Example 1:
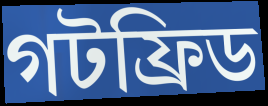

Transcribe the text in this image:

গটফ্রিড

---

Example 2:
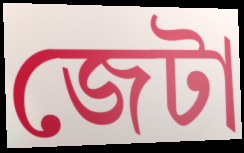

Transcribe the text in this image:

জেটা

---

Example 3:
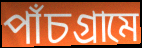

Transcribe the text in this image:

পাঁচগ্রামে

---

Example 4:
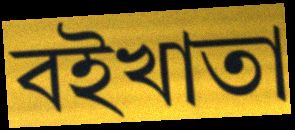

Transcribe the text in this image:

বইখাতা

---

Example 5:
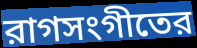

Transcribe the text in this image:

রাগসংগীতের